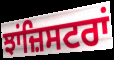
ਝਾਂਜ਼ਿਸਟਰਾਂ